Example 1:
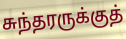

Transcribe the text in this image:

சுந்தரருக்குத்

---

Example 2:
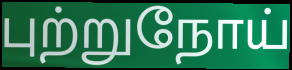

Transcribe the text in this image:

புற்றுநோய்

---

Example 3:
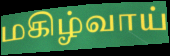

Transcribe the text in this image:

மகிழ்வாய்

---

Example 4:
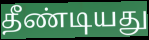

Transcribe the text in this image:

தீண்டியது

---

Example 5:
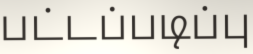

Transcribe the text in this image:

பட்டப்படிப்பு